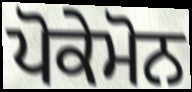
ਪੋਕੇਮੋਨ